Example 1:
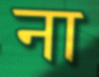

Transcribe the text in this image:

ना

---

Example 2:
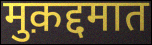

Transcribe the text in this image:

मुक़द्दमात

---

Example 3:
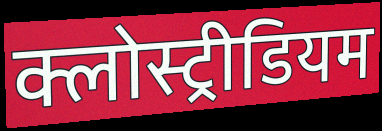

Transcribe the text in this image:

क्लोस्ट्रीडियम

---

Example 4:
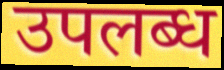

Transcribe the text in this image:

उपलब्ध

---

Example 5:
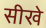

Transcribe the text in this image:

सीखे